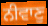
ਨੀਵਾਣੁ